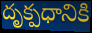
దృక్పధానికి